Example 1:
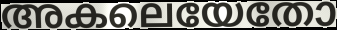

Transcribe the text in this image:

അകലെയേതോ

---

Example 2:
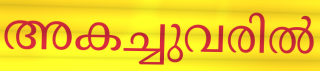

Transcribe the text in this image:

അകച്ചുവരിൽ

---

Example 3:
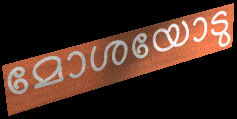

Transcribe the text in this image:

മോശയോടു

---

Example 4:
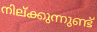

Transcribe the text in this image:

നില്ക്കുന്നുണ്ട്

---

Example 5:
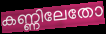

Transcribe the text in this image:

കണ്ണിലേതോ